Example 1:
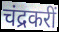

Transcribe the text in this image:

चंद्रकरीं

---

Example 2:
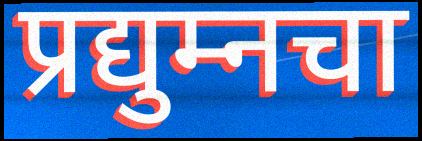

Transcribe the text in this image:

प्रद्युम्नचा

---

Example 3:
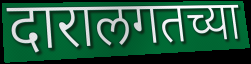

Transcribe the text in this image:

दारालगतच्या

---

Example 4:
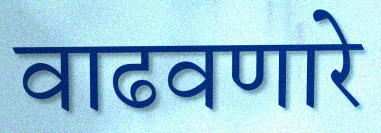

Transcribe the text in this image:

वाढवणारे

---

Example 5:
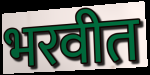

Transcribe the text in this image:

भरवीत